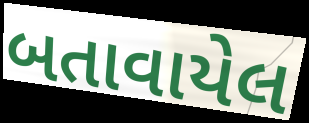
બતાવાયેલ